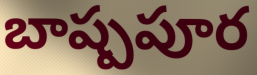
బాష్పపూర